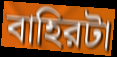
বাহিরটা